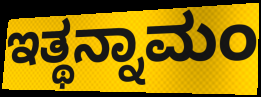
ಇತ್ಥನ್ನಾಮಂ